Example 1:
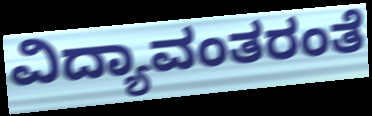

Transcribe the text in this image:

ವಿದ್ಯಾವಂತರಂತೆ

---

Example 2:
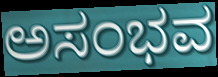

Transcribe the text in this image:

ಅಸಂಭವ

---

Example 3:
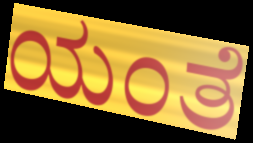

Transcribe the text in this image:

ಯಂತೆ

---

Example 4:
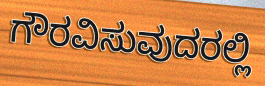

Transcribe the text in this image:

ಗೌರವಿಸುವುದರಲ್ಲಿ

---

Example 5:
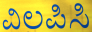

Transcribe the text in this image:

ವಿಲಪಿಸಿ